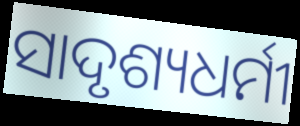
ସାଦୃଶ୍ୟଧର୍ମୀ